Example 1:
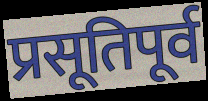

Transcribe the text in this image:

प्रसूतिपूर्व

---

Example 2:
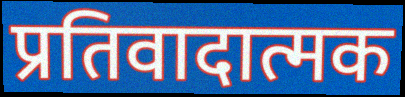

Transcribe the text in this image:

प्रतिवादात्मक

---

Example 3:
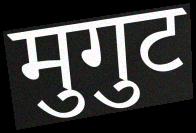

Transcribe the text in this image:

मुगुट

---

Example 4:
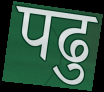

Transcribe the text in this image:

पढु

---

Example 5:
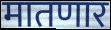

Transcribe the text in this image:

मातणार